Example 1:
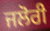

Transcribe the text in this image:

ਜਲੋਰੀ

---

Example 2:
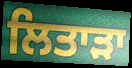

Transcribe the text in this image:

ਲਿਤਾੜਾ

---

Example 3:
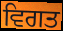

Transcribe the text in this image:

ਵਿਗਤ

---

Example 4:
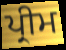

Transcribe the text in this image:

ਪ੍ਰੀਮ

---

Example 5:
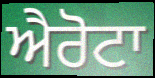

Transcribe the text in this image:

ਐਰੋਟਾ